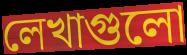
লেখাগুলো